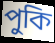
পুকি